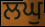
ਲਘੁ